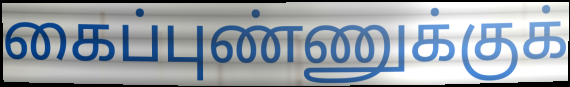
கைப்புண்ணுக்குக்